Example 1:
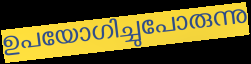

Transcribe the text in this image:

ഉപയോഗിച്ചുപോരുന്നു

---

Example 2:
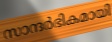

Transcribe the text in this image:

സാന്ദർഭികമായി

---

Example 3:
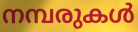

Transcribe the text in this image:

നമ്പരുകൾ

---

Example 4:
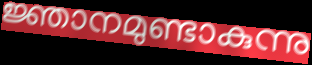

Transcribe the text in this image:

ജ്ഞാനമുണ്ടാകുന്നു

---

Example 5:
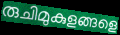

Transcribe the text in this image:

രുചിമുകുളങ്ങളെ